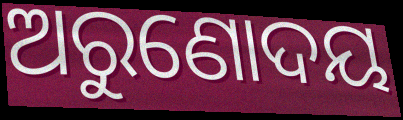
ଅରୁଣୋଦୟ